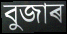
বুজাৰ